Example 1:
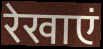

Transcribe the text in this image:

रेखाएं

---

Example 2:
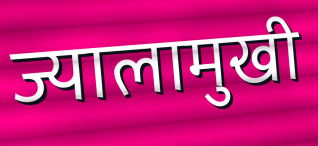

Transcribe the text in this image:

ज्यालामुखी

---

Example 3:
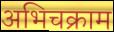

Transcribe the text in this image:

अभिचक्राम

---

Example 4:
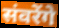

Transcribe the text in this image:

संवरेंगे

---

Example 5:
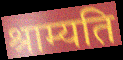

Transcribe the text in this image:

श्राम्यति